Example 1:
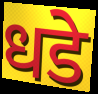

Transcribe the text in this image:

धडे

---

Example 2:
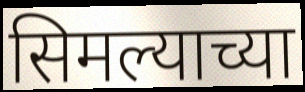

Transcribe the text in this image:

सिमल्याच्या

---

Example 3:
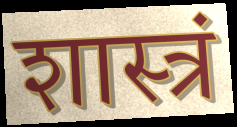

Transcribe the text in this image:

शास्त्रं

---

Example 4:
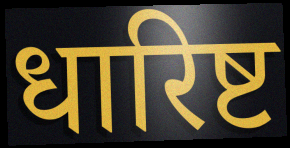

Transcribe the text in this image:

धारिष्ट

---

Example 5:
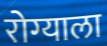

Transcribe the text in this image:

रोग्याला